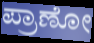
ಪ್ರಾಣೋ